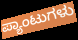
ಪ್ಯಾಂಟುಗಳು